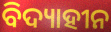
ବିଦ୍ୟାହୀନ